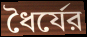
ধৈর্যের